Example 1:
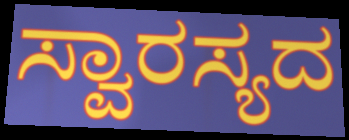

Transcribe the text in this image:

ಸ್ವಾರಸ್ಯದ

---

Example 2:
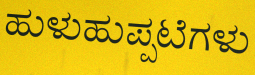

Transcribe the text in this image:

ಹುಳುಹುಪ್ಪಟೆಗಳು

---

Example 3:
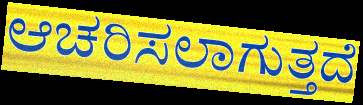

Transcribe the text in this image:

ಆಚರಿಸಲಾಗುತ್ತದೆ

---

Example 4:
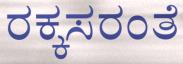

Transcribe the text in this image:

ರಕ್ಕಸರಂತೆ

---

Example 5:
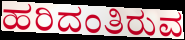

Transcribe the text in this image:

ಹರಿದಂತಿರುವ